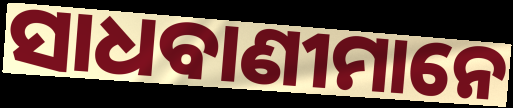
ସାଧବାଣୀମାନେ